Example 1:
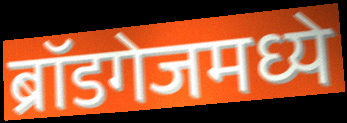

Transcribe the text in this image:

ब्रॉडगेजमध्ये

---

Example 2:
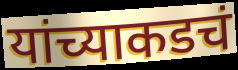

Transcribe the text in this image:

यांच्याकडचं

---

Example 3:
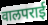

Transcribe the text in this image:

वालपराई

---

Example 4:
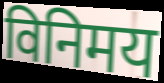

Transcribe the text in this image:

विनिमय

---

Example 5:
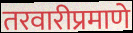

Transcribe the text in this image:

तरवारीप्रमाणे